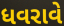
ધવરાવે